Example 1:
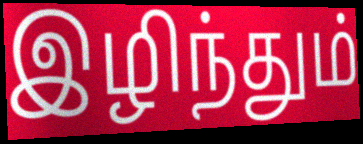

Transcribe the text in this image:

இழிந்தும்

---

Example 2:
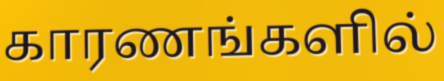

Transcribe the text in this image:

காரணங்களில்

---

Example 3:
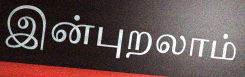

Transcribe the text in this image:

இன்புறலாம்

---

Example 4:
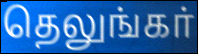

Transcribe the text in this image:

தெலுங்கர்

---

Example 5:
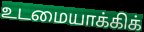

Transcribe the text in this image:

உடமையாக்கிக்